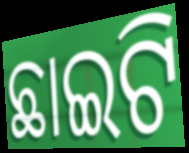
ଛାଇଟି